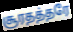
சூரதத்தரே